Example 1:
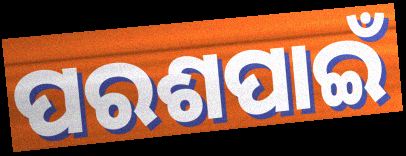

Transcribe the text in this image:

ପରଶପାଇଁ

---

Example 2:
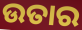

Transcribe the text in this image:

ଉତାର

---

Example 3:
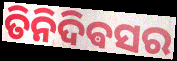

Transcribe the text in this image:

ତିନିଦିଵସର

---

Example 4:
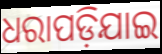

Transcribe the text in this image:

ଧରାପଡ଼ିଯାଇ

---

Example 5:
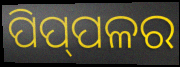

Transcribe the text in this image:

ପିପ୍‌ପଳର